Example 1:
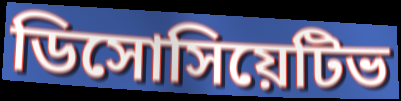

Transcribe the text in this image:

ডিসোসিয়েটিভ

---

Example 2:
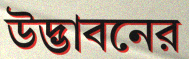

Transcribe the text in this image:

উদ্ভাবনের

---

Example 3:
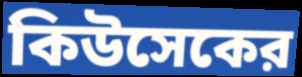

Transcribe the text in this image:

কিউসেকের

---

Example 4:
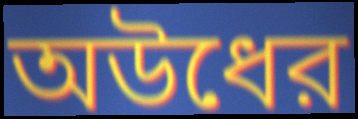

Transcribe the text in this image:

অউধের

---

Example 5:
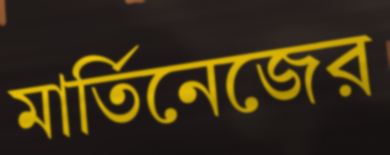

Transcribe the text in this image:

মার্তিনেজের